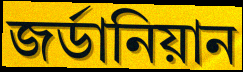
জর্ডানিয়ান